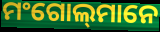
ମଂଗୋଲ୍‍ମାନେ